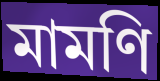
মামণি